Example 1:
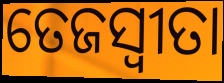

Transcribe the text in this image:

ତେଜସ୍ଵୀତା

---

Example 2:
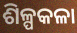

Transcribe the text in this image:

ଶିଳ୍ପକଳା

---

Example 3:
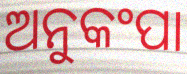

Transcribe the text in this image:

ଅନୁକଂପା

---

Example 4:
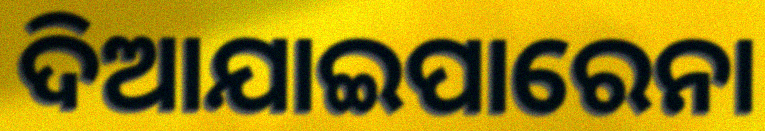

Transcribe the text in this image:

ଦିଆଯାଇପାରେନା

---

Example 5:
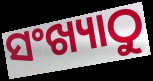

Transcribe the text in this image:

ସଂଖ୍ୟାଠୁ